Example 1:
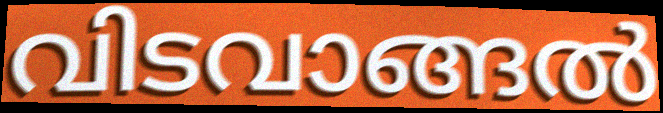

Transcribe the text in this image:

വിടവാങ്ങൽ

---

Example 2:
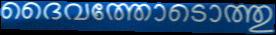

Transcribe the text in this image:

ദൈവത്തോടൊത്തു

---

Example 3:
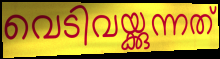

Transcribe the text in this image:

വെടിവയ്ക്കുന്നത്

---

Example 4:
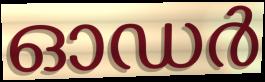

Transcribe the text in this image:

ഓഡർ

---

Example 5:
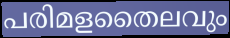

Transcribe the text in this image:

പരിമളതൈലവും